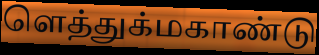
ளெத்துக்மகாண்டு